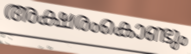
അക്ഷരംകൊണ്ടും